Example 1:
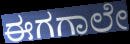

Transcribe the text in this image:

ಈಗಗಾಲೇ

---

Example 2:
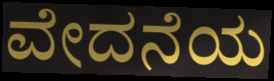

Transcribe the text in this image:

ವೇದನೆಯ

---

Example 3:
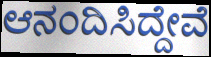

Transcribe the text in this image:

ಆನಂದಿಸಿದ್ದೇವೆ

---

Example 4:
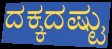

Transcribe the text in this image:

ದಕ್ಕದಷ್ಟು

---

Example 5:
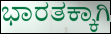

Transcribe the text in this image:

ಭಾರತಕ್ಕಾಗಿ